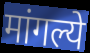
मांगल्ये